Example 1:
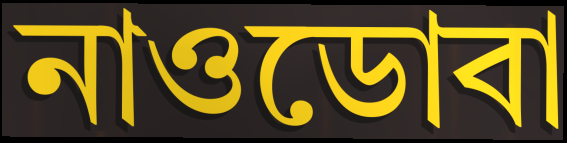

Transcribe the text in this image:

নাওডোবা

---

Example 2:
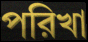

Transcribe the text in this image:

পরিখা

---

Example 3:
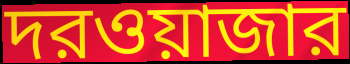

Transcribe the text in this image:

দরওয়াজার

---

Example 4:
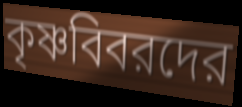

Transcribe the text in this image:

কৃষ্ণবিবরদের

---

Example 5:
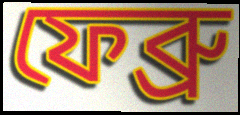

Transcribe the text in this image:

ফেব্রু